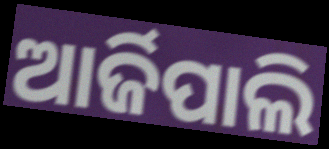
ଆର୍ଜିପାଲି